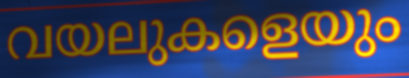
വയലുകളെയും